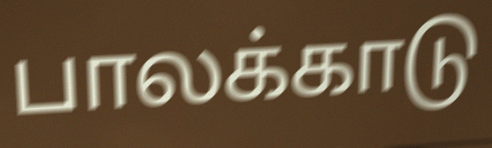
பாலக்காடு